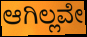
ಆಗಿಲ್ಲವೇ